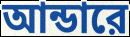
আন্ডারে